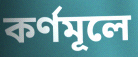
কর্ণমূলে